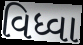
વિધ્વા